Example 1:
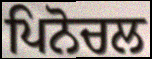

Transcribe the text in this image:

ਪਿਨੋਚਲ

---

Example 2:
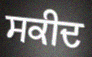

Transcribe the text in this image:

ਸਕੀਦ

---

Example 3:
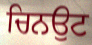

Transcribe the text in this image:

ਚਿਨਉਟ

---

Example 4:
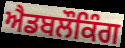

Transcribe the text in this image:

ਐਡਬਲੌਕਿੰਗ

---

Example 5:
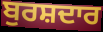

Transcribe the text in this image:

ਬੁਰਸ਼ਦਾਰ